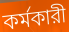
কর্মকারী